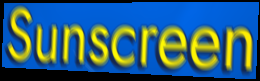
Sunscreen